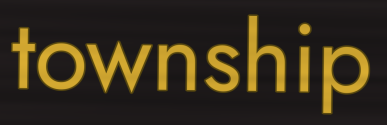
township